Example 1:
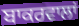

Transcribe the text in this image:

ਬਾਕਰਵਾਲਾਂ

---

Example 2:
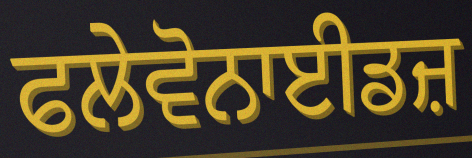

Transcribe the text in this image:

ਫਲੇਵੋਨਾਈਡਜ਼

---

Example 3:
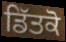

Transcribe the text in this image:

ਡਿੱਤਕੋ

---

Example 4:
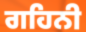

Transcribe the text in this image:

ਗਹਿਨੀ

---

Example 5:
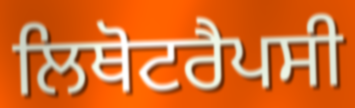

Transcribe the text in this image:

ਲਿਥੋਟਰੈਪਸੀ